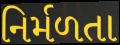
નિર્મળતા